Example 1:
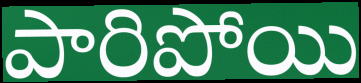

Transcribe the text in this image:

పారిపోయి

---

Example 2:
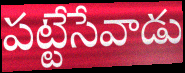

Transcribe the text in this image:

పట్టేసేవాడు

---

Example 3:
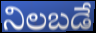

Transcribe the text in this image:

నిలబడే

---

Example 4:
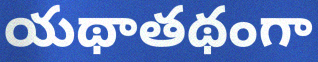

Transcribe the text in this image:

యథాతథంగా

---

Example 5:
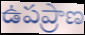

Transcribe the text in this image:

ఉపప్రాణ